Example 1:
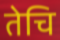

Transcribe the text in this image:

तेचि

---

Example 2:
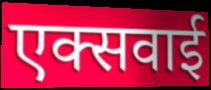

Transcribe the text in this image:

एक्सवाई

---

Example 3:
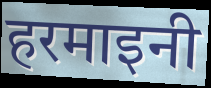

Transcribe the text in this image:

हरमाइनी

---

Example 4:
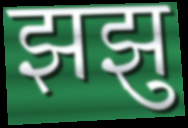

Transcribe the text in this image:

झझु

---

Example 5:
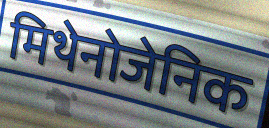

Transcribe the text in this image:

मिथेनोजेनिक